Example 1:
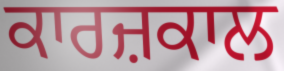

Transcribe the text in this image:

ਕਾਰਜ਼ਕਾਲ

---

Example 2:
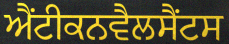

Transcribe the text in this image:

ਐਂਟੀਕਨਵੈਲਸੈਂਟਸ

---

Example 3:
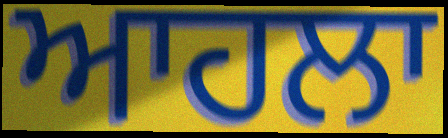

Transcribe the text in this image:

ਆਹਲਾ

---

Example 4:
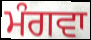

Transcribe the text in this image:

ਮੰਗਵਾ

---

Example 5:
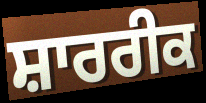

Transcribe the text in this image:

ਸ਼ਾਰਰੀਕ